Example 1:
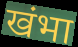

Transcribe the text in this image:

खंभा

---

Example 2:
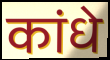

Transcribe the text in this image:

कांधे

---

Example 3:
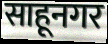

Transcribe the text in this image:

साहूनगर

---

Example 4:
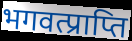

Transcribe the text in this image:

भगवत्प्राप्ति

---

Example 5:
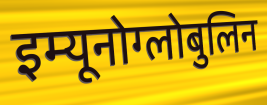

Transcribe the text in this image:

इम्यूनोग्लोबुलिन